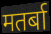
मतर्बा